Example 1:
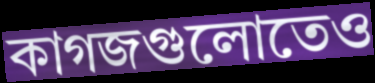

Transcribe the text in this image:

কাগজগুলোতেও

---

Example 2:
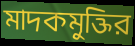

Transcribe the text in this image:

মাদকমুক্তির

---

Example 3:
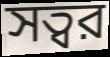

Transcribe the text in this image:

সত্বর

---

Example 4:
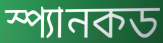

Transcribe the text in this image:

স্প্যানকড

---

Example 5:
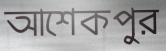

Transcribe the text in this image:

আশেকপুর